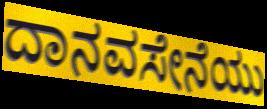
ದಾನವಸೇನೆಯು